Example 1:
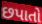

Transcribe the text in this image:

છપાતો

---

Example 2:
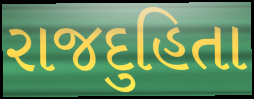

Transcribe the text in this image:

રાજદુહિતા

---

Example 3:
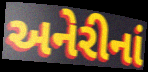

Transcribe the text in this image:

અનેરીનાં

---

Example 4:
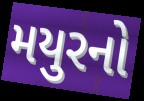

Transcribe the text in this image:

મયુરનો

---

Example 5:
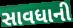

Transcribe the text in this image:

સાવધાની